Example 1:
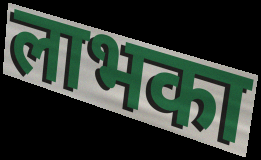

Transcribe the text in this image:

लाभका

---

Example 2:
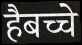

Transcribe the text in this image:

हैबच्चे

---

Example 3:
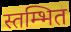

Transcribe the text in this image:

स्तम्भित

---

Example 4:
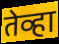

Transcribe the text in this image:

तेव्हा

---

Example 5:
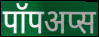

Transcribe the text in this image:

पॉपअप्स